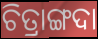
ଚିତ୍ରାଙ୍ଗଦା